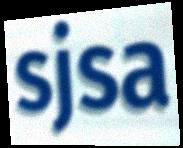
sjsa